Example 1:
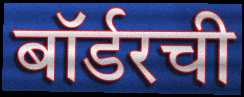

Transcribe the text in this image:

बॉर्डरची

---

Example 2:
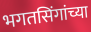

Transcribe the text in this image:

भगतसिंगांच्या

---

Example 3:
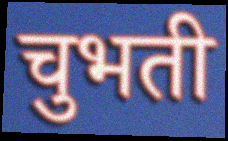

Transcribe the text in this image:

चुभती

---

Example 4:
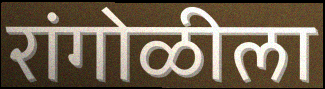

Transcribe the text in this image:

रांगोळीला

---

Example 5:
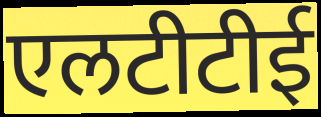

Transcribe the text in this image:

एलटीटीई